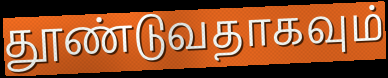
தூண்டுவதாகவும்